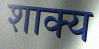
शाक्य